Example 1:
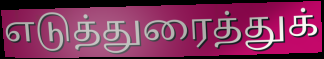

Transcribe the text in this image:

எடுத்துரைத்துக்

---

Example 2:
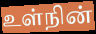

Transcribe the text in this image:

உள்நின்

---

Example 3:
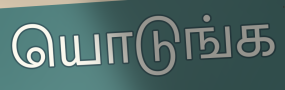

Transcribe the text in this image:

யொடுங்க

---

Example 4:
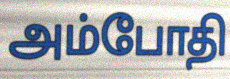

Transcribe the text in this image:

அம்போதி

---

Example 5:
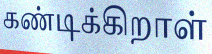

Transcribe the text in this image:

கண்டிக்கிறாள்